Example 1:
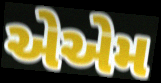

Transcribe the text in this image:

એએમ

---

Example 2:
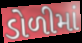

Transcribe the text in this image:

ડોળીમાં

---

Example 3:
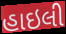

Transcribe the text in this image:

હાઇલી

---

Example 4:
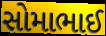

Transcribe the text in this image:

સોમાભાઈ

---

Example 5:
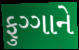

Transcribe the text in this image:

ફુગ્ગાને